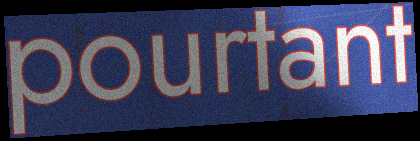
pourtant